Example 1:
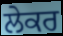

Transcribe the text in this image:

ਲੇਕਰ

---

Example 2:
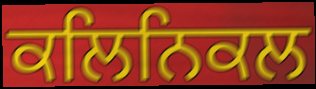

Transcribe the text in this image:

ਕਲਿਨਿਕਲ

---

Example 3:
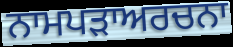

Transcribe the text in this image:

ਨਾਮਪੜਾਅਰਚਨਾ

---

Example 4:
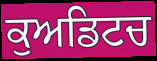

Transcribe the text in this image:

ਕੁਅਡਿਟਚ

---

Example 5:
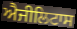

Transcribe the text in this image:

ਐਜੀਲਿਟਾਸ